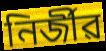
নিৰ্জীৱ